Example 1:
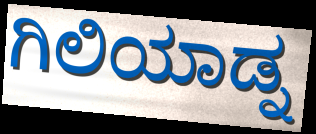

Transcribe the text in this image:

ಗಿಲಿಯಾಡ್ನ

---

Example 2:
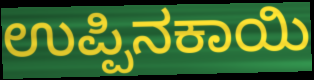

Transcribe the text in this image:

ಉಪ್ಪಿನಕಾಯಿ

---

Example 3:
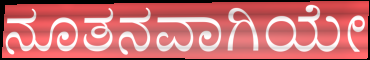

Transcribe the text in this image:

ನೂತನವಾಗಿಯೇ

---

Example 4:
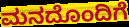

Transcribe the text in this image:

ಮನದೊಂದಿಗೆ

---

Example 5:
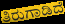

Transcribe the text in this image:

ತಿರುಗಾಡಿದೆ